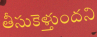
తీసుకెళ్తుందని